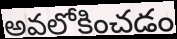
అవలోకించడం